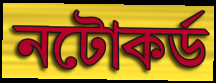
নটোকর্ড